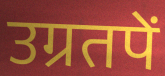
उग्रतपें